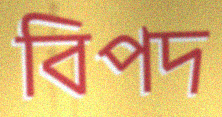
বিপদ